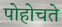
पोहोचते